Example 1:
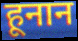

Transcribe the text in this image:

हूनान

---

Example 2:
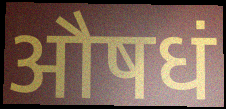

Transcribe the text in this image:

औषधं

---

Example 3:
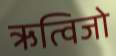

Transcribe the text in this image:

ऋत्विजो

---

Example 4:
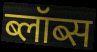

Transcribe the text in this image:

ब्लॉब्स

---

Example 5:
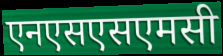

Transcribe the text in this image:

एनएसएसएमसी